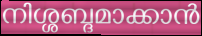
നിശ്ശബ്ദമാക്കാൻ